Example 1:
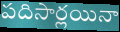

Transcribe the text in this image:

పదిసార్లయినా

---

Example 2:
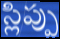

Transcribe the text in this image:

స్లిప్పు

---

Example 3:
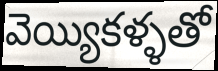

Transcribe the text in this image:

వెయ్యికళ్ళతో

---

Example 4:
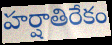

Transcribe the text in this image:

హర్షాతిరేకం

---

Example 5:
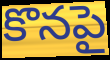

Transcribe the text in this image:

కొనపై